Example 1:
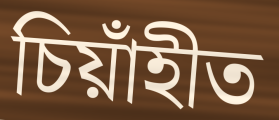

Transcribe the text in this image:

চিয়াঁহীত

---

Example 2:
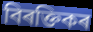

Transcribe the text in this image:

বিৰক্তিকৰ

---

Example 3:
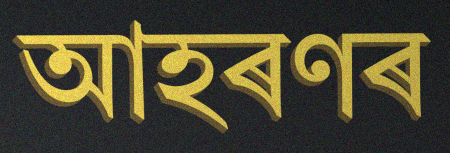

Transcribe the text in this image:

আহৰণৰ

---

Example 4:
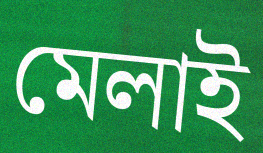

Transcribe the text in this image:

মেলাই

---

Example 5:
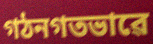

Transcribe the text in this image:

গঠনগতভাৱে